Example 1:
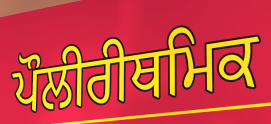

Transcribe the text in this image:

ਪੌਲੀਰੀਥਮਿਕ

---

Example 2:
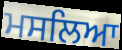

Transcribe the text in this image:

ਮਸਲਿਆ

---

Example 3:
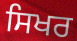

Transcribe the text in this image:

ਸਿਖਰ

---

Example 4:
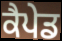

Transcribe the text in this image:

ਕੈਪੇਡ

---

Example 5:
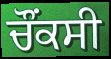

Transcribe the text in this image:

ਚੌਂਕਸੀ